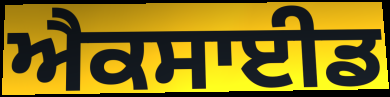
ਐਕਸਾਈਡ